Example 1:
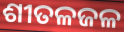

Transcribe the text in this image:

ଶୀତଳଜଳ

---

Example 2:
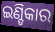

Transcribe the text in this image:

ଇଣ୍ଡିକାର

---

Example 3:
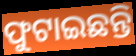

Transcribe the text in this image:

ଫୁଟାଇଛନ୍ତି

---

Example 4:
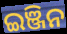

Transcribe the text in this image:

ଇଞ୍ଜିନ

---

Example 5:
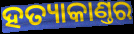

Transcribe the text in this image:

ହତ୍ୟାକାଣ୍ତର